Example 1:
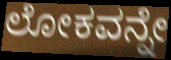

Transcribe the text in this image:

ಲೋಕವನ್ನೇ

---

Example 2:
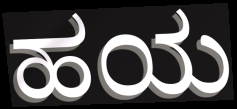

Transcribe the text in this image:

ಹಯ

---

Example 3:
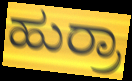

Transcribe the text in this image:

ಹುರ್ರಾ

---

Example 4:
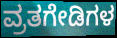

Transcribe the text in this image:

ವ್ರತಗೇಡಿಗಳ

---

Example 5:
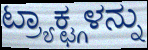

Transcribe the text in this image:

ಟ್ರ್ಯಾಕ್ಟ್ಗಳನ್ನು